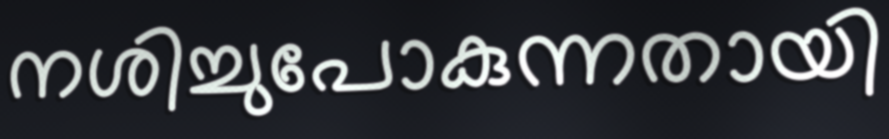
നശിച്ചുപോകുന്നതായി